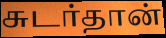
சுடர்தான்